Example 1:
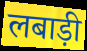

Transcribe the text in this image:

लबाड़ी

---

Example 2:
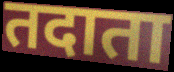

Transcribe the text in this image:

तदाता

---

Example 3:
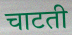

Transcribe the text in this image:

चाटती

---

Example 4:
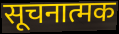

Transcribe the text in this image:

सूचनात्मक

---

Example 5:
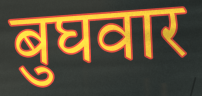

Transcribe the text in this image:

बुघवार